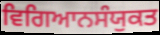
ਵਿਗਿਆਨਸੰਯੁਕਤ